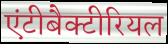
एंटीबैक्टीरियल